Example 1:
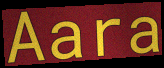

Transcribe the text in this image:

Aara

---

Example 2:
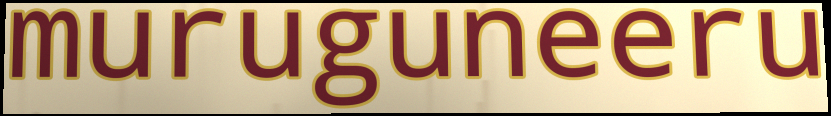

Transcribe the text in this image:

muruguneeru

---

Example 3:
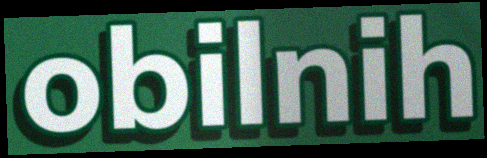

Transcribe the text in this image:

obilnih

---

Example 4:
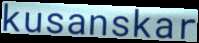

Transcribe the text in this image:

kusanskar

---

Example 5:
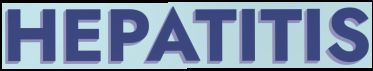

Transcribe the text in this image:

HEPATITIS